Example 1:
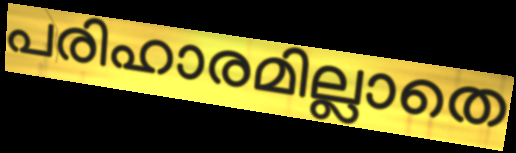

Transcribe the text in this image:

പരിഹാരമില്ലാതെ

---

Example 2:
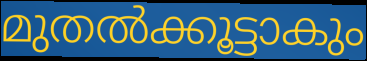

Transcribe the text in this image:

മുതൽക്കൂട്ടാകും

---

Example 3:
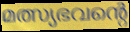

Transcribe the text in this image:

മത്സ്യഭവന്റെ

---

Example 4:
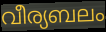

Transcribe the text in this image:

വീര്യബലം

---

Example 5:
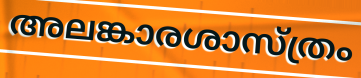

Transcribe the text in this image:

അലങ്കാരശാസ്ത്രം